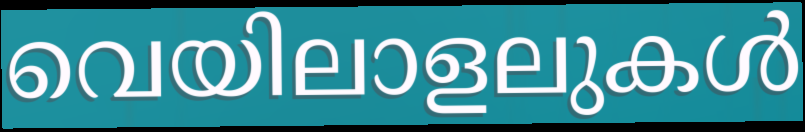
വെയിലാളലുകൾ